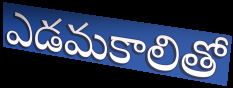
ఎడమకాలితో